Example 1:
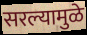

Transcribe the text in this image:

सरल्यामुळे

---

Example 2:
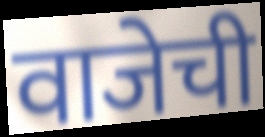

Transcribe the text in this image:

वाजेची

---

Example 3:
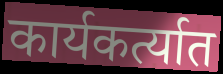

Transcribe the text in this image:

कार्यकर्त्यात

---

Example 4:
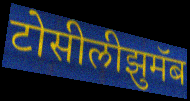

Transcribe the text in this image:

टोसीलीझुमॅब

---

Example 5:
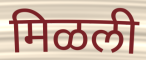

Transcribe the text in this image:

मिळली